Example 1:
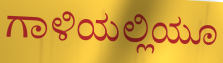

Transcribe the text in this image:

ಗಾಳಿಯಲ್ಲಿಯೂ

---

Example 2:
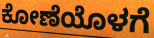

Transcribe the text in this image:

ಕೋಣೆಯೊಳಗೆ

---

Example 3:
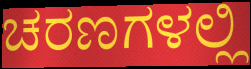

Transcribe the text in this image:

ಚರಣಗಳಲ್ಲಿ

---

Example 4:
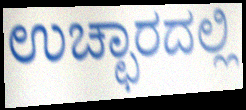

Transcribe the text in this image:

ಉಚ್ಛಾರದಲ್ಲಿ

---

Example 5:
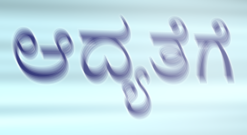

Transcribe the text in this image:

ಆದ್ಯತೆಗೆ